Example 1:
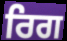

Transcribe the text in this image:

ਰਿਗ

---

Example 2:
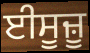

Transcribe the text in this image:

ਈਸੂਜ਼ੂ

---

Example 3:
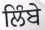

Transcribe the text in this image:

ਲਿੰਬੇ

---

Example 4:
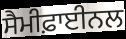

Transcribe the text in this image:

ਸੈਮੀਫ਼ਾਈਨਲ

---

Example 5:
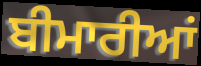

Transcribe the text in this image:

ਬੀਮਾਰੀਆਂ